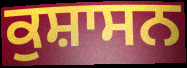
ਕੁਸ਼ਾਸਨ